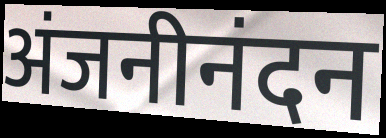
अंजनीनंदन